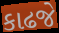
કાઢજે